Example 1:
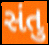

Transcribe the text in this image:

સંતુ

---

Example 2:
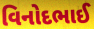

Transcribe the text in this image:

વિનોદભાઈ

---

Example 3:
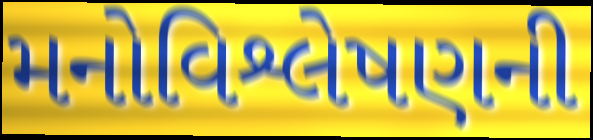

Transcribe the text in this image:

મનોવિશ્લેષણની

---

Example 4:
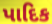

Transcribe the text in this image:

પાદિક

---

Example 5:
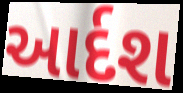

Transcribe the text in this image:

આર્દશ